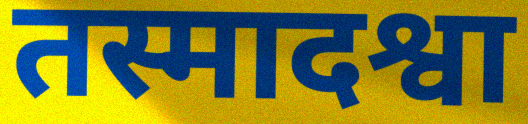
तस्मादश्वा